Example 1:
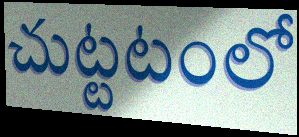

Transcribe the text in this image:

చుట్టటంలో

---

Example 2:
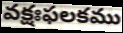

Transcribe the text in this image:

వక్షఃఫలకము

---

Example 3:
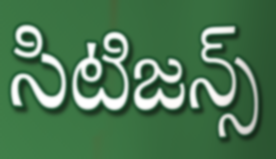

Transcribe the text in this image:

సిటిజన్స్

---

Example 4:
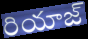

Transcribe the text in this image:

రియాజ్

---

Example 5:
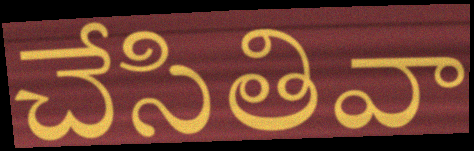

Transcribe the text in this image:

చేసితివా